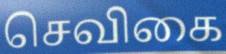
செவிகை